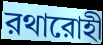
রথারোহী